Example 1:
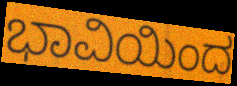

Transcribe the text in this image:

ಭಾವಿಯಿಂದ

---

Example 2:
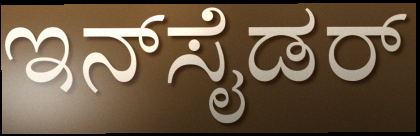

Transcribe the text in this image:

ಇನ್‌ಸೈಡರ್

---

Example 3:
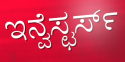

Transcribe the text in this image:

ಇನ್ವೆಸ್ಟರ್ಸ್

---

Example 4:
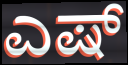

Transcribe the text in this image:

ಎಷ್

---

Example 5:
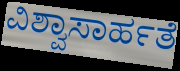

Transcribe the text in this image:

ವಿಶ್ವಾಸಾರ್ಹತೆ